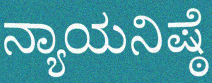
ನ್ಯಾಯನಿಷ್ಠೆ